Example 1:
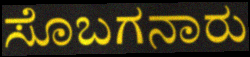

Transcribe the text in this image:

ಸೊಬಗನಾರು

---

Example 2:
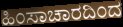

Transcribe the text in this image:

ಹಿಂಸಾಚಾರದಿಂದ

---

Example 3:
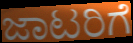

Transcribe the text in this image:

ಜಾಟರಿಗೆ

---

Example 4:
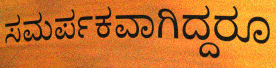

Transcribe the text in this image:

ಸಮರ್ಪಕವಾಗಿದ್ದರೂ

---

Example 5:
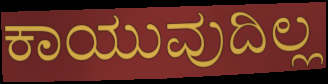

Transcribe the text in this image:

ಕಾಯುವುದಿಲ್ಲ